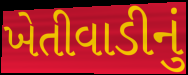
ખેતીવાડીનું